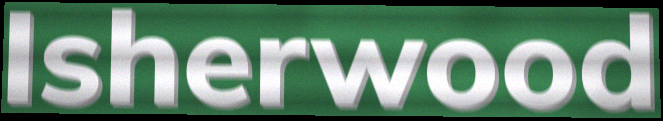
Isherwood